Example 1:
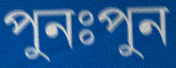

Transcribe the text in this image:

পুনঃপুন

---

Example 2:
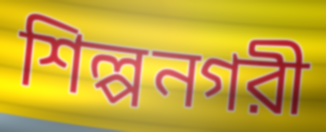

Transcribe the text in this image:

শিল্পনগরী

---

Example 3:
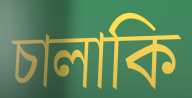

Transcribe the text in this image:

চালাকি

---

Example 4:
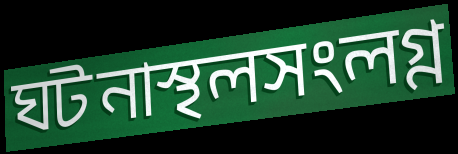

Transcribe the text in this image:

ঘটনাস্থলসংলগ্ন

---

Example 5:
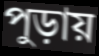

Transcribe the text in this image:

পুড়ায়